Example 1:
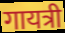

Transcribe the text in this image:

गायत्री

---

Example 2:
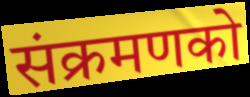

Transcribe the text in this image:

संक्रमणको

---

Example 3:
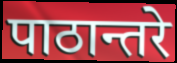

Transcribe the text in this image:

पाठान्तरे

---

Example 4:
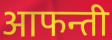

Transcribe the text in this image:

आफन्ती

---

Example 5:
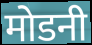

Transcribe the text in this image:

मोडनी